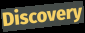
Discovery